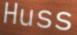
Huss